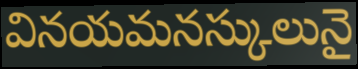
వినయమనస్కులునై